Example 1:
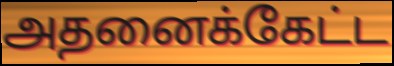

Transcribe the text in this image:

அதனைக்கேட்ட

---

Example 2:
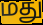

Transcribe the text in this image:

மது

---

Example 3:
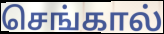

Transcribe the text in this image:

செங்கால்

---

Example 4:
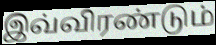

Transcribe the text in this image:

இவ்விரண்டும்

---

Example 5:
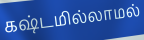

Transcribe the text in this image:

கஷ்டமில்லாமல்